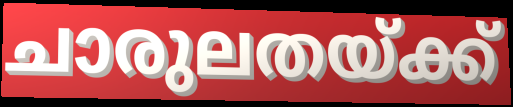
ചാരുലതയ്ക്ക്